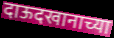
दाऊदखानाच्या